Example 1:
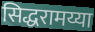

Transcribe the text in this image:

सिद्धरामय्या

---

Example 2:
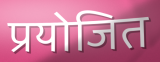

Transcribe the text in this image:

प्रयोजित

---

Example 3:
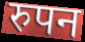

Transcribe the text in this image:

रुपन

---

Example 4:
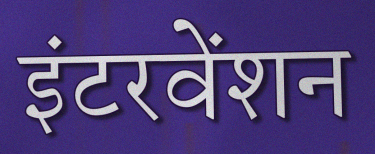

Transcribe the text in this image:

इंटरवेंशन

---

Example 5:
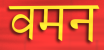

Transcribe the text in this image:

वमन